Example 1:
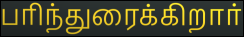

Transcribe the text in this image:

பரிந்துரைக்கிறார்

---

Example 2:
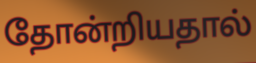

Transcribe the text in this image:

தோன்றியதால்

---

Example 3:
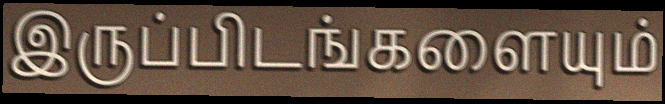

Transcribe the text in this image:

இருப்பிடங்களையும்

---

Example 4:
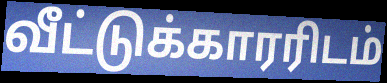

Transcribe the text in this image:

வீட்டுக்காரரிடம்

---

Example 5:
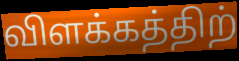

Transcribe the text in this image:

விளக்கத்திற்